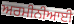
ਅਰਮੀਨੀਆਈ